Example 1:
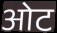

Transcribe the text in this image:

ओट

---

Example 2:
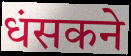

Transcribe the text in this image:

धंसकने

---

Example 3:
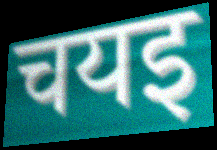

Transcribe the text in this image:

चयइ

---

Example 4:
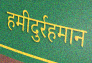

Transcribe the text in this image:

हमीदुर्रहमान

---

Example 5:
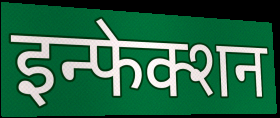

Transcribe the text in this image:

इन्फेक्शन